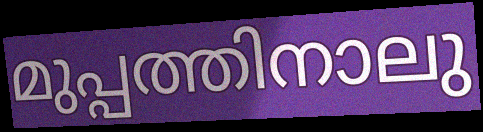
മുപ്പത്തിനാലു